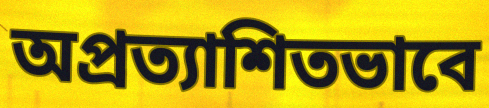
অপ্রত্যাশিতভাবে